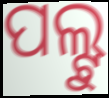
ପଲ୍ଟୁ